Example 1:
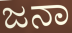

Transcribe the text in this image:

ಜನಾ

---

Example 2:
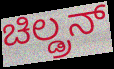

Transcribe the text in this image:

ಚಿಲ್ಡ್ರನ್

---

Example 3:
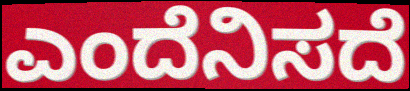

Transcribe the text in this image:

ಎಂದೆನಿಸದೆ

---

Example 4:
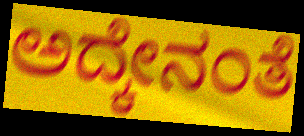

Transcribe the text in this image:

ಅದ್ಕೇನಂತೆ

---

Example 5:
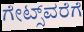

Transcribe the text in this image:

ಗೇಟ್ಸ್‌ವರೆಗೆ